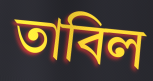
তাবিল